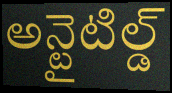
అన్టైటిల్డ్